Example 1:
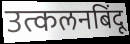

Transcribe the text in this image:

उत्कलनबिंदू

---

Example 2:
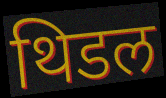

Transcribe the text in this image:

थिडल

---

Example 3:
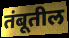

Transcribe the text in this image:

तंबूतील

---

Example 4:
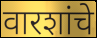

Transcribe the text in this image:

वारशांचे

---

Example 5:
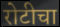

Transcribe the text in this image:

रोटीचा